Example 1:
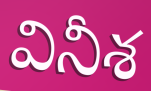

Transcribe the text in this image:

వినీశ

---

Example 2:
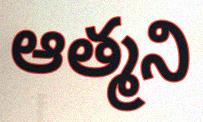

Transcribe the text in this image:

ఆత్మని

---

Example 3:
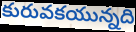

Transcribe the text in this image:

కురువకయున్నది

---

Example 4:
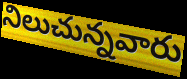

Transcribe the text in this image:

నిలుచున్నవారు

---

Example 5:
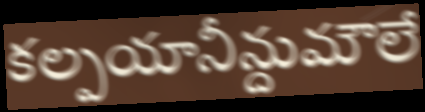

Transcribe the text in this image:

కల్పయానీన్దుమౌలే